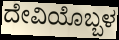
ದೇವಿಯೊಬ್ಬಳ